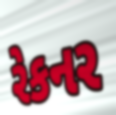
રેકનર